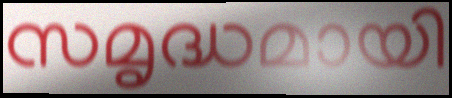
സമൃദ്ധമായി